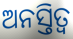
ଅନସ୍ତିତ୍ୱ